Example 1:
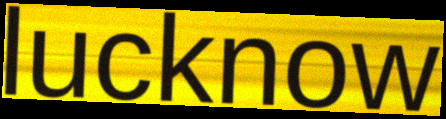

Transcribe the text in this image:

lucknow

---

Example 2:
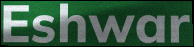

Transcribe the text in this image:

Eshwar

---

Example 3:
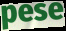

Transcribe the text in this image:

pese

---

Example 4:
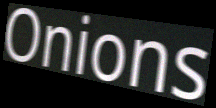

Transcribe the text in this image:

Onions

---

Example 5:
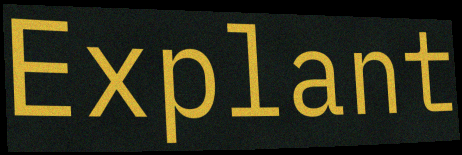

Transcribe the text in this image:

Explant